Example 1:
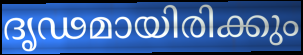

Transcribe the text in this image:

ദൃഢമായിരിക്കും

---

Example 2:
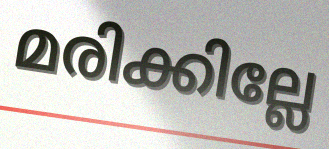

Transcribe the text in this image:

മരിക്കില്ലേ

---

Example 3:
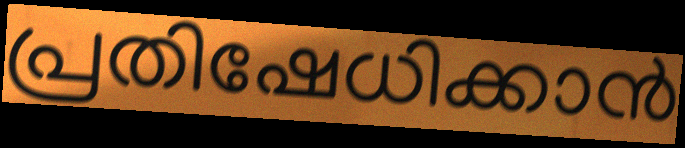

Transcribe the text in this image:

പ്രതിഷേധിക്കാൻ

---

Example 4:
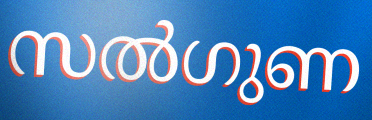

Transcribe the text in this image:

സൽഗുണ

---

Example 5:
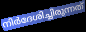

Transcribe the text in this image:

നിർദേശിച്ചിരുന്നത്